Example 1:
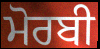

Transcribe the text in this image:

ਮੋਰਬੀ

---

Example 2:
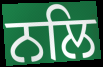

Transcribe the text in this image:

ਨਲਿ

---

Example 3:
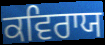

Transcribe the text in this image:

ਕਵਿਰਾਯ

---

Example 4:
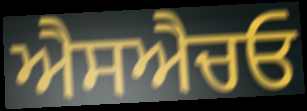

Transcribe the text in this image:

ਐਸਐਚਓ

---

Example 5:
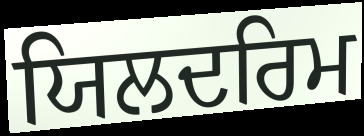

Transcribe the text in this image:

ਯਿਲਦਰਿਮ